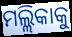
ମଲ୍ଲିକାକୁ